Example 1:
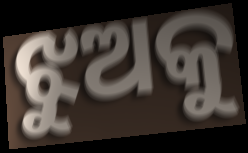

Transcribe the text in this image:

ଝୁଅକୁ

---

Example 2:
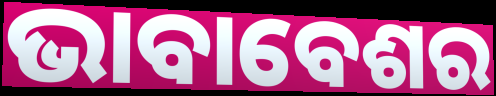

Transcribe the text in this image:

ଭାବାବେଶର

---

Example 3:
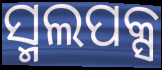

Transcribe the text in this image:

ସ୍ମଲପକ୍ସ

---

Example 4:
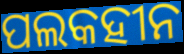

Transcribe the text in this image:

ପଲକହୀନ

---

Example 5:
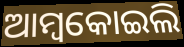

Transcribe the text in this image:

ଆମ୍ବକୋଇଲି